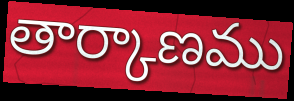
తార్కాణము